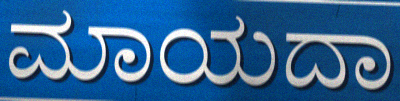
ಮಾಯದಾ